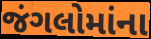
જંગલોમાંના